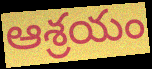
ఆశ్రయం